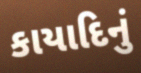
કાયાદિનું